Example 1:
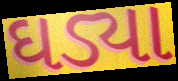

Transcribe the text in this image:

ઘડ્યા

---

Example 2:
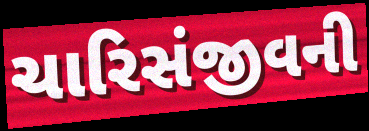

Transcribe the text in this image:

ચારિસંજીવની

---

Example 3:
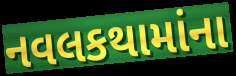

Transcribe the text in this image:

નવલકથામાંના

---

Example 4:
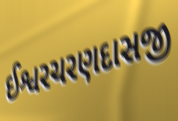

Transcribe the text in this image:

ઈશ્વરચરણદાસજી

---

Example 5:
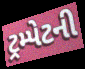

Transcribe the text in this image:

ટ્રમ્પેટની